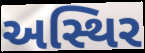
અસ્થિર